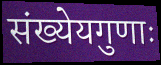
संख्येयगुणाः